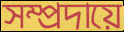
সম্প্রদায়ে